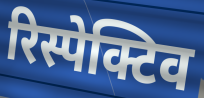
रिस्पेक्टिव